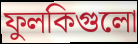
ফুলকিগুলো